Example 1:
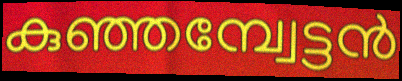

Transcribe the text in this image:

കുഞ്ഞമ്പ്വേട്ടൻ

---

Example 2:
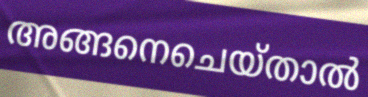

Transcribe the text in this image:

അങ്ങനെചെയ്താൽ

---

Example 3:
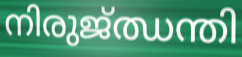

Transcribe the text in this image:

നിരുജ്ഝന്തി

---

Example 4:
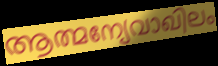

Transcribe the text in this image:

ആത്മന്യേവാഖിലം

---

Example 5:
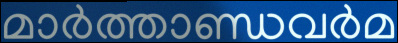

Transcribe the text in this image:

മാർത്താണ്ഡവർമ